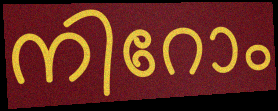
നിറോം